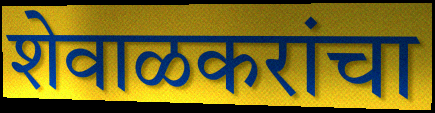
शेवाळकरांचा